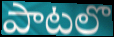
పాటలొ